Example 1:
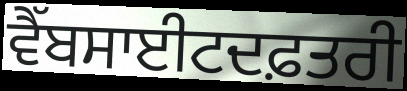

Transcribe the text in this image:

ਵੈੱਬਸਾਈਟਦਫ਼ਤਰੀ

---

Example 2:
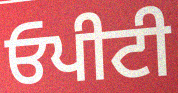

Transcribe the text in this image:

ਓਪੀਟੀ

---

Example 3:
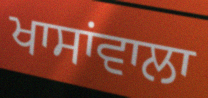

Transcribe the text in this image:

ਖਾਸਾਂਵਾਲਾ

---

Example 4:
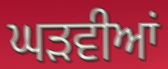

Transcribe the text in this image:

ਘੜਵੀਆਂ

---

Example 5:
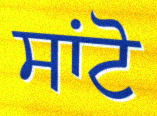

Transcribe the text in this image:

ਸਾਂਟੋ